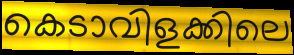
കെടാവിളക്കിലെ